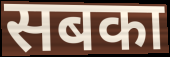
सबका